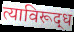
त्याविरूद्ध